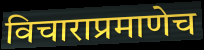
विचाराप्रमाणेच